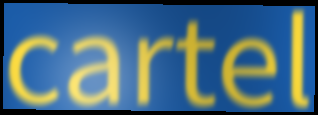
cartel